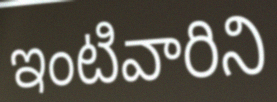
ఇంటివారిని